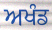
ਅਖੰਡ